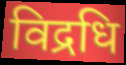
विद्रधि